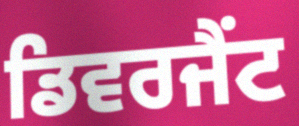
ਡਿਵਰਜੈਂਟ